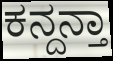
ಕನ್ದನ್ತಾ